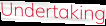
Undertaking